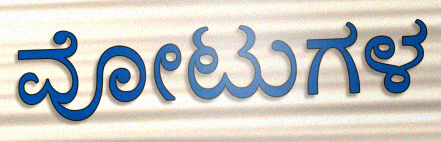
ವೋಟುಗಳ